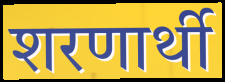
शरणार्थी